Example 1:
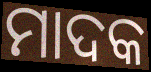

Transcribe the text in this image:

ମାଦକ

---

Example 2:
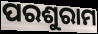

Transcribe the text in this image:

ପରଶୁରାମ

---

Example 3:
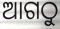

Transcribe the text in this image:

ଆଗଠୁ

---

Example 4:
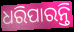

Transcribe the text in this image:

ଧରିପାରନ୍ତି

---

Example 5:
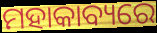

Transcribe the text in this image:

ମହାକାବ୍ୟରେ